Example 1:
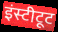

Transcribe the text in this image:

इंस्टीटूट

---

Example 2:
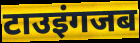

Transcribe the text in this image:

टाउइंगजब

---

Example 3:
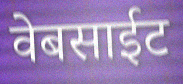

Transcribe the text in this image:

वेबसाईट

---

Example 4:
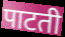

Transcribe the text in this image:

पाटती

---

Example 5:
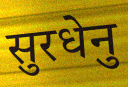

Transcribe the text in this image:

सुरधेनु